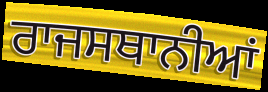
ਰਾਜਸਥਾਨੀਆਂ